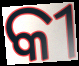
କୀ